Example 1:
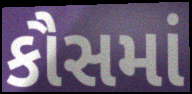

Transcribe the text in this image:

કૌસમાં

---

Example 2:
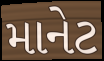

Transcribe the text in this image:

માનેટ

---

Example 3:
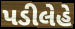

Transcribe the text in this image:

પડીલેહે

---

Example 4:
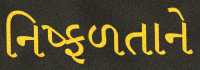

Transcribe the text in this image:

નિષ્ફળતાને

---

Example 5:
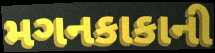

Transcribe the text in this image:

મગનકાકાની